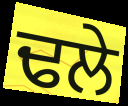
ਢਲੇ